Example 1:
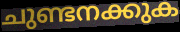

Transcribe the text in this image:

ചുണ്ടനക്കുക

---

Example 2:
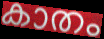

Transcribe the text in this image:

കാതം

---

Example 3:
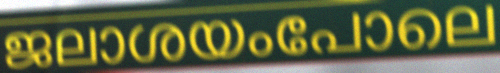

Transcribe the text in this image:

ജലാശയംപോലെ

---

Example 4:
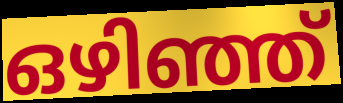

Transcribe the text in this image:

ഒഴിഞ്ഞ്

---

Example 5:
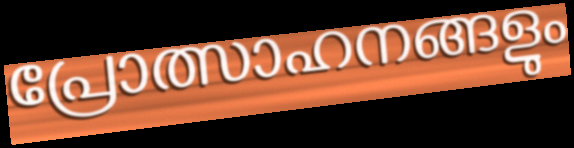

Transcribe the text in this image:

പ്രോത്സാഹനങ്ങളും